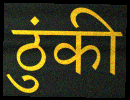
ठुंकी